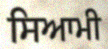
ਸਿਆਮੀ